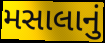
મસાલાનું